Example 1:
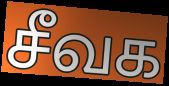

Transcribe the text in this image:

சீவக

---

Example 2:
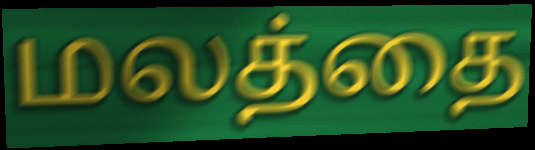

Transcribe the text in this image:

மலத்தை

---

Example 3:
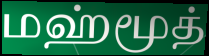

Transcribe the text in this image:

மஹ்மூத்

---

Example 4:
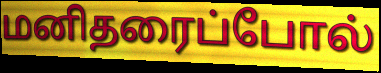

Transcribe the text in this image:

மனிதரைப்போல்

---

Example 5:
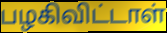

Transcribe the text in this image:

பழகிவிட்டாள்